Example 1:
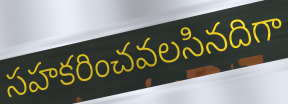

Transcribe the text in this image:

సహకరించవలసినదిగా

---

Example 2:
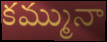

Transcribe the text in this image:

కమ్మునా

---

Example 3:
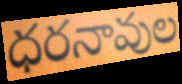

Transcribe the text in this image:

ధరనావుల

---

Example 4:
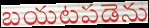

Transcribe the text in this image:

బయటపడెను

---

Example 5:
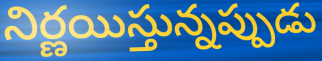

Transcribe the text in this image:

నిర్ణయిస్తున్నప్పుడు